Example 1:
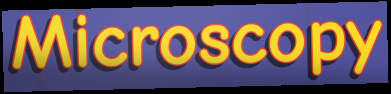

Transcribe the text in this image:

Microscopy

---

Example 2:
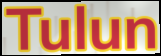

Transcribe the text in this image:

Tulun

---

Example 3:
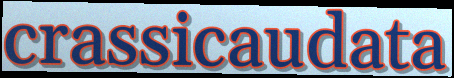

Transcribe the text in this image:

crassicaudata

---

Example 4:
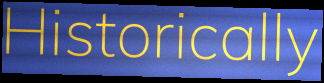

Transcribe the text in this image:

Historically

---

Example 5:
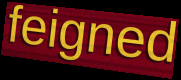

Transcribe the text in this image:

feigned